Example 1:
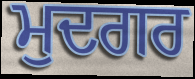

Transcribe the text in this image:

ਮੁਦਗਰ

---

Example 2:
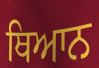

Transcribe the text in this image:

ਥਿਆਨ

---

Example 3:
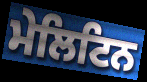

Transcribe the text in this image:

ਮੇਲਿਟਿਨ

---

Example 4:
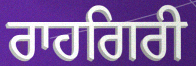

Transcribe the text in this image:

ਰਾਹਗਿਰੀ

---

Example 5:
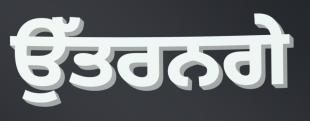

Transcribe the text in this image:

ਉੱਤਰਨਗੇ